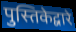
पुस्तिकेद्वारे